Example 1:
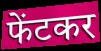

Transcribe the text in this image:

फेंटकर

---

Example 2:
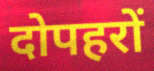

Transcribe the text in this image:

दोपहरों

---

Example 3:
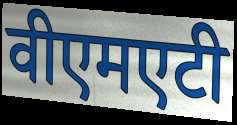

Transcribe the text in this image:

वीएमएटी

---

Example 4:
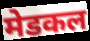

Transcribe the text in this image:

मेडकल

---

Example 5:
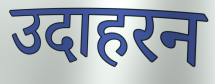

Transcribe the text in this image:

उदाहरन